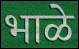
भाळे